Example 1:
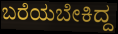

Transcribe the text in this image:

ಬರೆಯಬೇಕಿದ್ದ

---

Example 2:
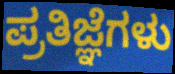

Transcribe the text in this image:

ಪ್ರತಿಜ್ಞೆಗಳು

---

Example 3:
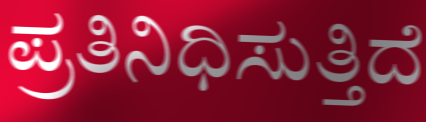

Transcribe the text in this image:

ಪ್ರತಿನಿಧಿಸುತ್ತಿದೆ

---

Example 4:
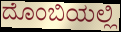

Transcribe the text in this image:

ದೊಂಬಿಯಲ್ಲಿ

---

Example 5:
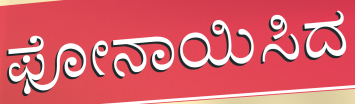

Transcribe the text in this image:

ಫೋನಾಯಿಸಿದ